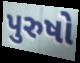
પુરુષો